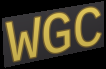
WGC